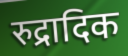
रुद्रादिक